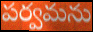
పర్వమను